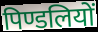
पिण्डलियों